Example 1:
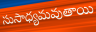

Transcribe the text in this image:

సుసాధ్యమవుతాయి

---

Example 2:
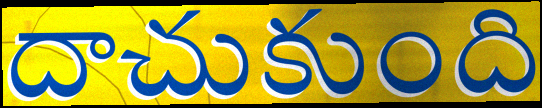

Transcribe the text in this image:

దాచుకుంది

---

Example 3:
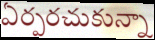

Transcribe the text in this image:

ఏర్పరచుకున్నా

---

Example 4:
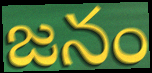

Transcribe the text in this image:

జనం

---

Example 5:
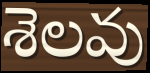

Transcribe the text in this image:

శెలవు